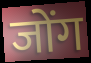
जोंग